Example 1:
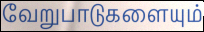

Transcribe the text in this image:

வேறுபாடுகளையும்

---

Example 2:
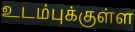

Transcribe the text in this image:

உடம்புக்குள்ள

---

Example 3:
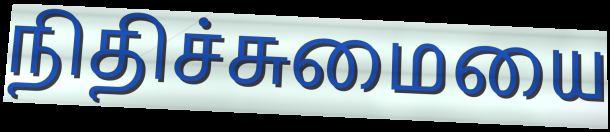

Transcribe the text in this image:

நிதிச்சுமையை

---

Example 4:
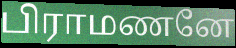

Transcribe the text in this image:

பிராமணனே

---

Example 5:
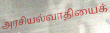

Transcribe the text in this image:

அரசியல்வாதியைக்